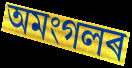
অমংগলৰ